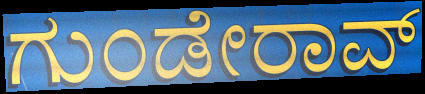
ಗುಂಡೇರಾವ್